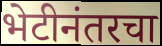
भेटीनंतरचा